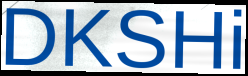
DKSHi